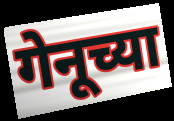
गेनूच्या